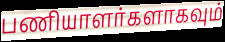
பணியாளர்களாகவும்